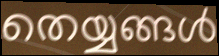
തെയ്യങ്ങൾ